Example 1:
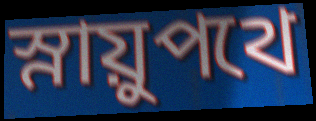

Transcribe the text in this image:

স্নায়ুপথে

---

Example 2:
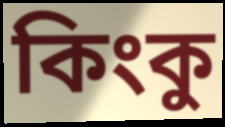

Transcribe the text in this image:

কিংকু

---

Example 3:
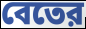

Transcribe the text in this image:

বেতের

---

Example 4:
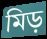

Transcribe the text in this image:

মিড়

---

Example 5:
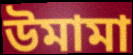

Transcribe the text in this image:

উমামা